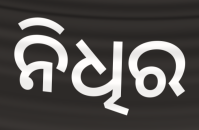
ନିଧିର